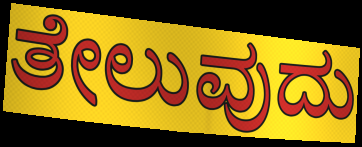
ತೇಲುವುದು